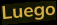
Luego